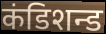
कंडिशन्ड